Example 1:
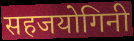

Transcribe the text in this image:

सहजयोगिनी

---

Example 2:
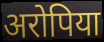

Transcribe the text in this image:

अरोपिया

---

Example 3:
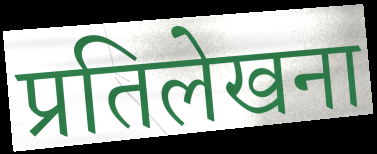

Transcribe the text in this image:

प्रतिलेखना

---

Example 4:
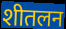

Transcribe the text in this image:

शीतलन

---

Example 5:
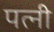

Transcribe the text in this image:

पत्‍नी